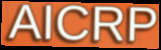
AICRP